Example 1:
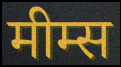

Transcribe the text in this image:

मीम्स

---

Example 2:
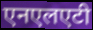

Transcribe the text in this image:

एनएलएटी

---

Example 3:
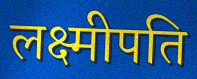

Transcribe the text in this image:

लक्ष्मीपति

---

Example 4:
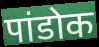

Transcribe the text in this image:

पांडोक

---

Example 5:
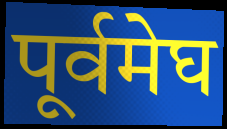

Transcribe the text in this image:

पूर्वमेघ